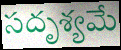
సదృశ్యమే